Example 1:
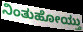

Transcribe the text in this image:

ನಿಂತುಹೋಯ್ತು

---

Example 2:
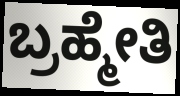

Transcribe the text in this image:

ಬ್ರಹ್ಮೇತಿ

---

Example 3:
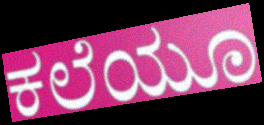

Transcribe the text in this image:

ಕಲೆಯೂ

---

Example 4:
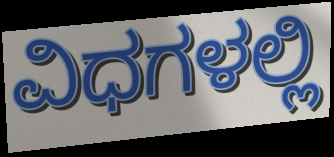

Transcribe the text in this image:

ವಿಧಗಳಲ್ಲಿ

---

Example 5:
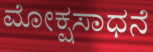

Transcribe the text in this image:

ಮೋಕ್ಷಸಾಧನೆ